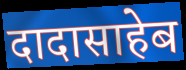
दादासाहेब